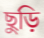
ছুড়ি